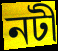
নটী